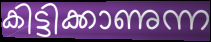
കിട്ടിക്കാണുന്ന